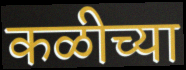
कळीच्या